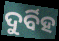
ଦୁର୍ବିହ